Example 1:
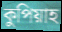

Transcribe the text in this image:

কুপিয়াহ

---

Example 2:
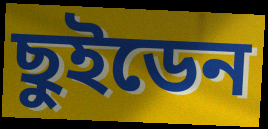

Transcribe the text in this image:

ছুইডেন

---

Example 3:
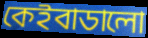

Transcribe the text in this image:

কেইবাডালো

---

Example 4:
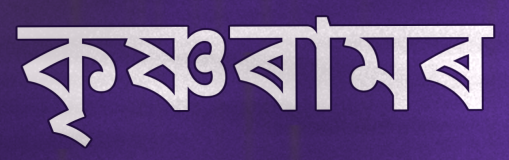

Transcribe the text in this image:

কৃষ্ণৰামৰ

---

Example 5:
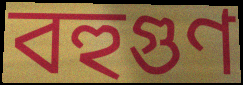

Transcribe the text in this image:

বহুগুণ